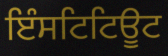
ਇੰਸਟਿਟਿਊਟ